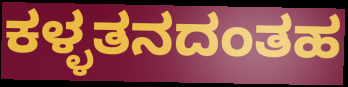
ಕಳ್ಳತನದಂತಹ